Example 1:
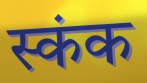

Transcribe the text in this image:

स्कंक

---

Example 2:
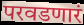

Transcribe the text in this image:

परवडणारं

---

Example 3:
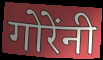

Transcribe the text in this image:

गोरेंनी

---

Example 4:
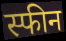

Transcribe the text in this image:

स्फीन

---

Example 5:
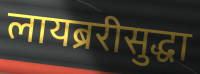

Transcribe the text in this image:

लायब्ररीसुद्धा